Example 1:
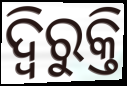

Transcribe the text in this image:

ଦ୍ୱିରୁକ୍ତି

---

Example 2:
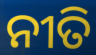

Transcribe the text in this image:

ନୀତି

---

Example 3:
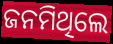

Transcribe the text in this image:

ଜନମିଥିଲେ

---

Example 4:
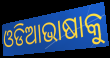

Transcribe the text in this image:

ଓଡିଆଭାଷାକୁ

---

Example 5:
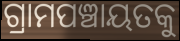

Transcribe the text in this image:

ଗ୍ରାମପଞ୍ଚାୟତକୁ